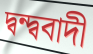
দ্বন্দ্ববাদী